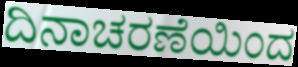
ದಿನಾಚರಣೆಯಿಂದ